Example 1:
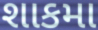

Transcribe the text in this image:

શાકમા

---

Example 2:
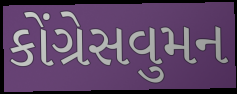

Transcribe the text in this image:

કોંગ્રેસવુમન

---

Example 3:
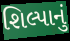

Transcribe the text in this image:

શિલ્પાનું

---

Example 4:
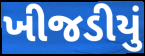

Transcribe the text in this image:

ખીજડીયું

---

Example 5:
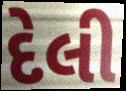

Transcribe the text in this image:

દેલી